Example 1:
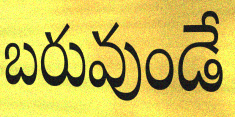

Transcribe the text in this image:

బరువుండే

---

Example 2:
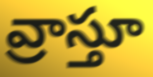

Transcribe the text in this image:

వ్రాస్తూ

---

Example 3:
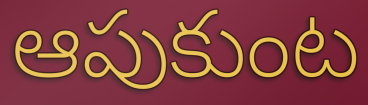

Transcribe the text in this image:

ఆపుకుంట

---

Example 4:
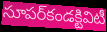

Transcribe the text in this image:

సూపర్‌కండక్టివిటీ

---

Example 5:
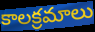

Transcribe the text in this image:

కాలక్రమాలు